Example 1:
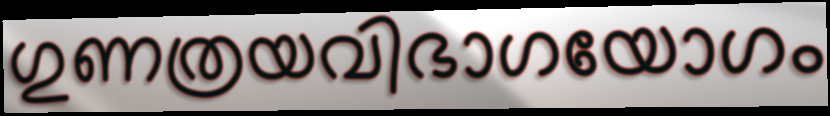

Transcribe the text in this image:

ഗുണത്രയവിഭാഗയോഗം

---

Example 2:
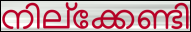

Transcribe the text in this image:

നില്ക്കേണ്ടി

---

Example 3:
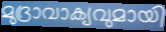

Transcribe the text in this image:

മുദ്രാവാക്യവുമായി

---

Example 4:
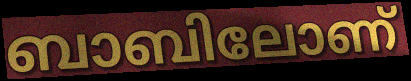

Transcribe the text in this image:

ബാബിലോണ്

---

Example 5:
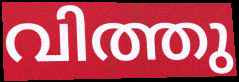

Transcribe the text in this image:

വിത്തു